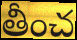
తీంచ